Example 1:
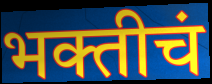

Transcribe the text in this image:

भक्तीचं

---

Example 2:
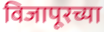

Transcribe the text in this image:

विजापूरच्या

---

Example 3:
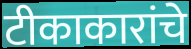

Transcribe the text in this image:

टीकाकारांचे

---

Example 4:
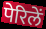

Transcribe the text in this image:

पेरिलें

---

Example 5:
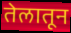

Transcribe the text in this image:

तेलातून